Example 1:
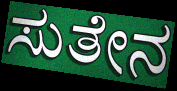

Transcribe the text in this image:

ಸುತೇನ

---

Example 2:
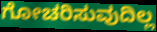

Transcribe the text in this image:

ಗೋಚರಿಸುವುದಿಲ್ಲ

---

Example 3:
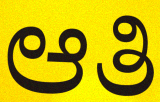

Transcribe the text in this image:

ಆತಿ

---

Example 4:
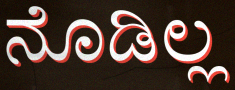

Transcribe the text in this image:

ನೊಡಿಲ್ಲ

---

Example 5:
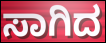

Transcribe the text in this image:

ಸಾಗಿದ